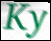
Ky